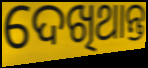
ଦେଖିଥାନ୍ତ